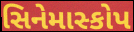
સિનેમાસ્કોપ